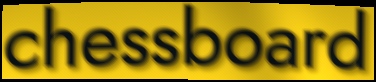
chessboard